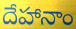
దేహానాం